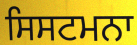
ਸਿਸਟਮਨਾ